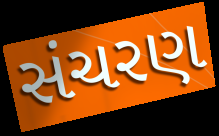
સંચરણ